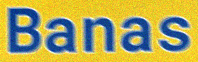
Banas